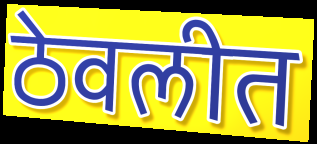
ठेवलीत